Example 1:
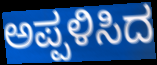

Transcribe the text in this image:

ಅಪ್ಪಳಿಸಿದ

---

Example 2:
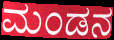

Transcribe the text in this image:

ಮಂಡನ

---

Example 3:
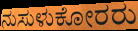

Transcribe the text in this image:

ನುಸುಳುಕೋರರು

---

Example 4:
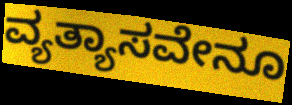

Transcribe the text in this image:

ವ್ಯತ್ಯಾಸವೇನೂ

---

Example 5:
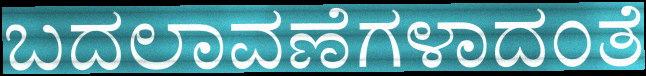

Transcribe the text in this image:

ಬದಲಾವಣೆಗಳಾದಂತೆ